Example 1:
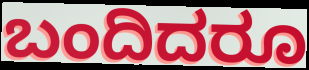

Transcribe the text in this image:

ಬಂದಿದರೂ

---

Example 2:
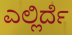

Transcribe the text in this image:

ಎಲ್ಲಿರ್ದೆ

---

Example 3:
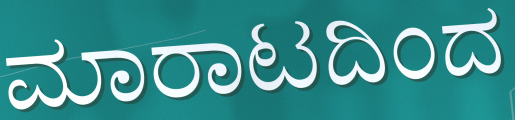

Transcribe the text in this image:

ಮಾರಾಟದಿಂದ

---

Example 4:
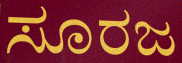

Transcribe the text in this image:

ಸೂರಜ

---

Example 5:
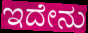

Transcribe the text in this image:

ಇದೇನು